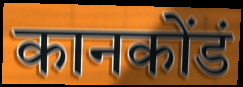
कानकोंडं